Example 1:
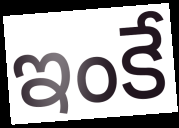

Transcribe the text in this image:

ఇంకే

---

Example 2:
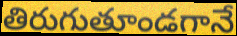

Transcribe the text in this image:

తిరుగుతూండగానే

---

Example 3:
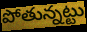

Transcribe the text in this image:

పోతున్నట్టు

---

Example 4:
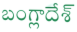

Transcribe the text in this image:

బంగ్లాదేశ్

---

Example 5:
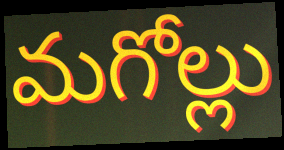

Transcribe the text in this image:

మగోల్లు